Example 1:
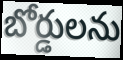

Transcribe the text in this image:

బోర్డులను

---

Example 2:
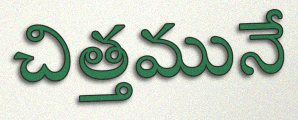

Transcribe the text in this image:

చిత్తమునే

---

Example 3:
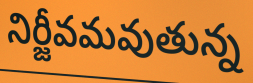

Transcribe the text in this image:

నిర్జీవమవుతున్న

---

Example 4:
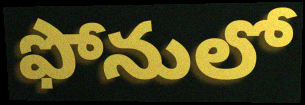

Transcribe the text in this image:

ఫోనులో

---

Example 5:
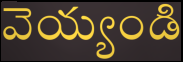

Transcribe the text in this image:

వెయ్యండి